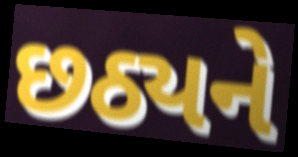
છઠ્યને